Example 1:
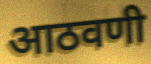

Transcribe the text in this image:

आठवणी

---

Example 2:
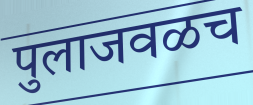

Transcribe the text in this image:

पुलाजवळच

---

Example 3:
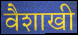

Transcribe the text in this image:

वैशाखी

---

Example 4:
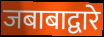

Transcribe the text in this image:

जबाबाद्वारे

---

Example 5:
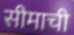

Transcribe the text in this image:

सीमाची